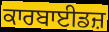
ਕਾਰਬਾਈਡਜ਼